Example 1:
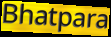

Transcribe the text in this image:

Bhatpara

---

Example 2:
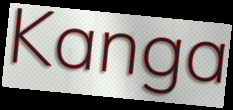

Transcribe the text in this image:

Kanga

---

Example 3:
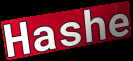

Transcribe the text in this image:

Hashe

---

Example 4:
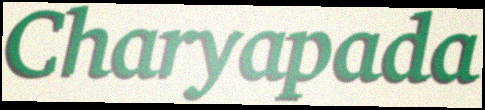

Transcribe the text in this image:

Charyapada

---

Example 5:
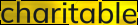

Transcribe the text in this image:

charitable